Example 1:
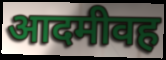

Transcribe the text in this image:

आदमीवह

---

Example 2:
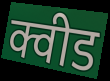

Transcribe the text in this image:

क्वीड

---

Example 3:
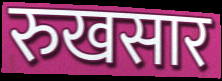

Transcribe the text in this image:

रुखसार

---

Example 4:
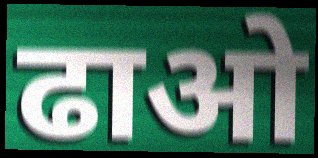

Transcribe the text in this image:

ढाओ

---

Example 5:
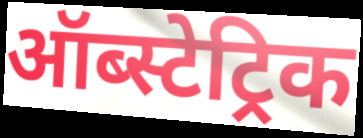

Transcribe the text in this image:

ऑब्स्टेट्रिक